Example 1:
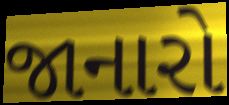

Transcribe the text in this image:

જાનારો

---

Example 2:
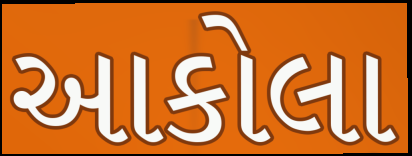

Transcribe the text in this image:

આકોલા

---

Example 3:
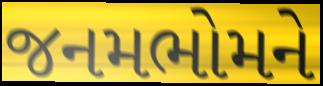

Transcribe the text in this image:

જનમભોમને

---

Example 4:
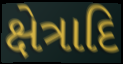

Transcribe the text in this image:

ક્ષેત્રાદિ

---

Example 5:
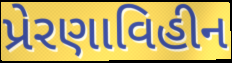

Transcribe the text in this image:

પ્રેરણાવિહીન